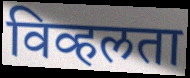
विव्हलता